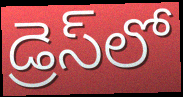
డ్రెస్‌లో